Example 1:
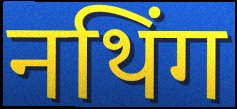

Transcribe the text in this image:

नथिंग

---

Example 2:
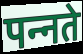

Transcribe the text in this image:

पन्नते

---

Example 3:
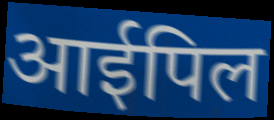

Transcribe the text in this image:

आईपिल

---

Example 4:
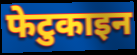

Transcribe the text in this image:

फेटुकाइन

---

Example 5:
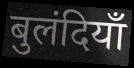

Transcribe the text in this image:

बुलंदियाँ